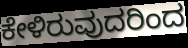
ಕೇಳಿರುವುದರಿಂದ